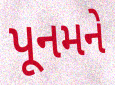
પૂનમને